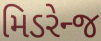
મિડરેન્જ